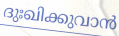
ദുഃഖിക്കുവാൻ